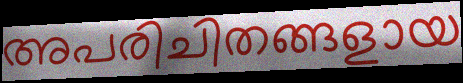
അപരിചിതങ്ങളായ